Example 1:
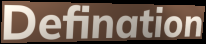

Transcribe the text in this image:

Defination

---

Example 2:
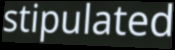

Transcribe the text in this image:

stipulated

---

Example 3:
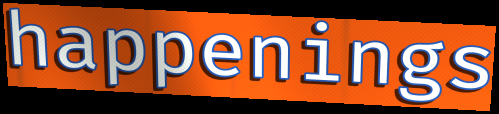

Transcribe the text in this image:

happenings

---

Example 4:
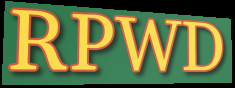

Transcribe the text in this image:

RPWD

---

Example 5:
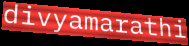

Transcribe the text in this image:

divyamarathi